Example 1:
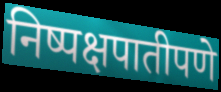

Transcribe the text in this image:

निष्पक्षपातीपणे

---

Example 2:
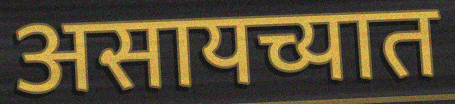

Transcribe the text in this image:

असायच्यात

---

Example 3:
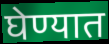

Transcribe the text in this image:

घेण्यात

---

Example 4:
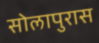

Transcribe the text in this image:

सोलापुरास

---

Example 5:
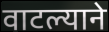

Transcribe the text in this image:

वाटल्याने